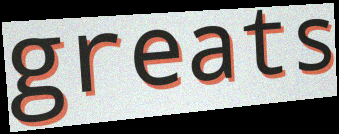
greats